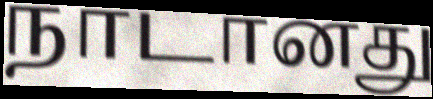
நாடானது